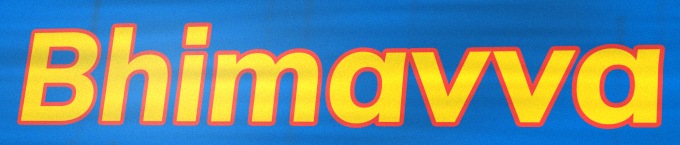
Bhimavva